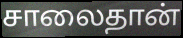
சாலைதான்